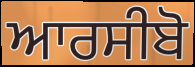
ਆਰਸੀਬੋ